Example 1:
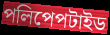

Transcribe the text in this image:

পলিপেপটাইড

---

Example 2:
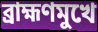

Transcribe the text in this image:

ব্রাহ্মণমুখে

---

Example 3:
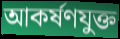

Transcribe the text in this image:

আকর্ষণযুক্ত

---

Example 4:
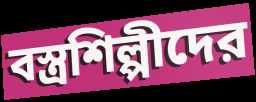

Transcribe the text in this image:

বস্ত্রশিল্পীদের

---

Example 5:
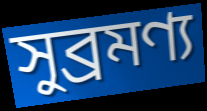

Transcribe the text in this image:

সুব্রমণ্য